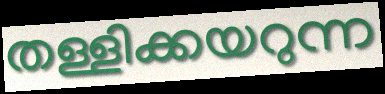
തള്ളിക്കയറുന്ന